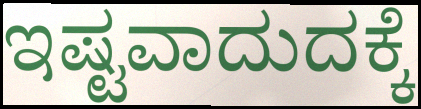
ಇಷ್ಟವಾದುದಕ್ಕೆ